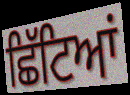
ਛਿੱਟਿਆਂ